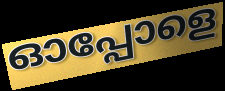
ഓപ്പോളെ